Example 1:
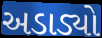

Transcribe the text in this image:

અડાડ્યો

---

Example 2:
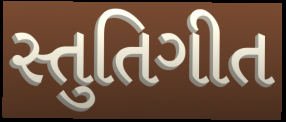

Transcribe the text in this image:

સ્તુતિગીત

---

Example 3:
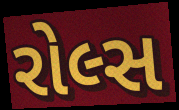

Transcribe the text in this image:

રોલ્સ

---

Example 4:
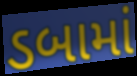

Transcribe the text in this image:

ડબામાં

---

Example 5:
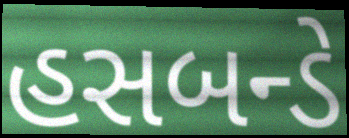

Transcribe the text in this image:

હસબન્ડે